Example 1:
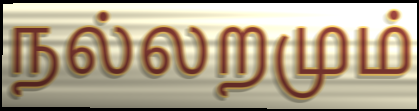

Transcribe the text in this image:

நல்லறமும்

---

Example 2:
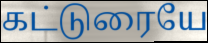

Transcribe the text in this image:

கட்டுரையே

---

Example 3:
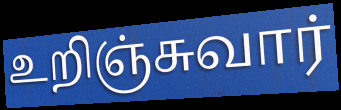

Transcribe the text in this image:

உறிஞ்சுவார்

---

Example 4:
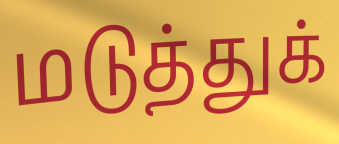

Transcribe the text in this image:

மடுத்துக்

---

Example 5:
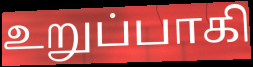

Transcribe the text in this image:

உறுப்பாகி